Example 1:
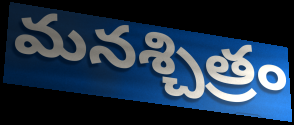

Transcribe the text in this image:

మనశ్చిత్రం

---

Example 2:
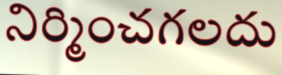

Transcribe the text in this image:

నిర్మించగలదు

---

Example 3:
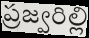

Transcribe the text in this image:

ప్రజ్వరిల్లి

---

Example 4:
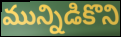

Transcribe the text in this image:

మున్నిడికొని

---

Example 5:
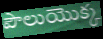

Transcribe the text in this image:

పౌలుయొక్క